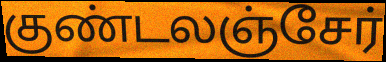
குண்டலஞ்சேர்